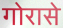
गोरासे